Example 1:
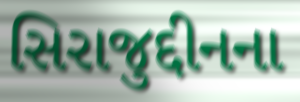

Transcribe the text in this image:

સિરાજુદ્દીનના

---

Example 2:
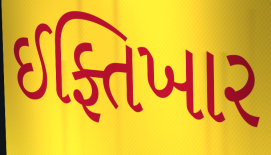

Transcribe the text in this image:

ઈફ્તિખાર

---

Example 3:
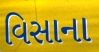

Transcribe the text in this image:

વિસાના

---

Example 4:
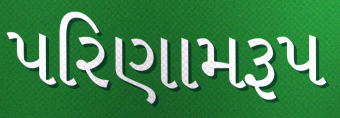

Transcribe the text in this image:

પરિણામરૂપ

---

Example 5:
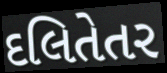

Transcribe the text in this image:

દલિતેતર